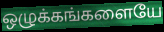
ஒழுக்கங்களையே